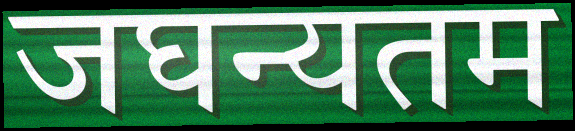
जघन्यतम